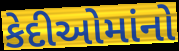
કેદીઓમાંનો